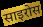
साइरोस